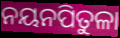
ନୟନପିତୁଳା